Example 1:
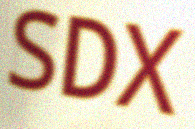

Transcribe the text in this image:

SDX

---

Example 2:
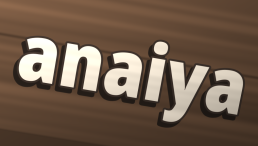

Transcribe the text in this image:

anaiya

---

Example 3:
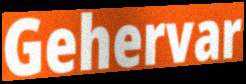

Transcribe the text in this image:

Gehervar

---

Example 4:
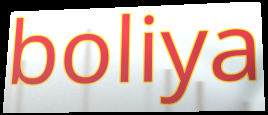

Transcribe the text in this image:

boliya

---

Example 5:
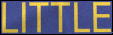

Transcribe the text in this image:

LITTLE